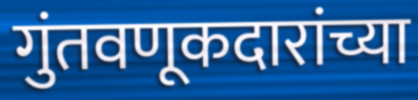
गुंतवणूकदारांच्या